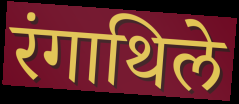
रंगाथिले